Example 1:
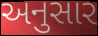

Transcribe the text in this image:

અનુસાર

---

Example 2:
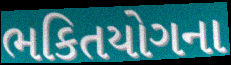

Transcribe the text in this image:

ભકિતયોગના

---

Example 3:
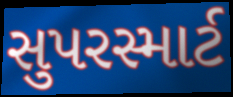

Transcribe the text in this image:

સુપરસ્માર્ટ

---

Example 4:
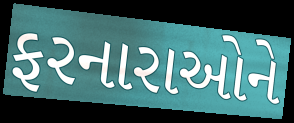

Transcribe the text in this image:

ફરનારાઓને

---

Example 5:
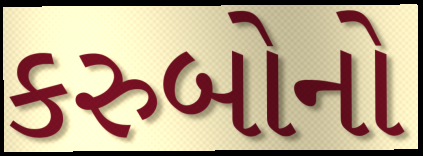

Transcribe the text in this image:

કરુબોનો